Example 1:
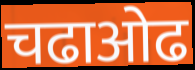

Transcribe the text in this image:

चढाओढ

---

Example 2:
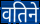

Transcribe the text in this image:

वतिने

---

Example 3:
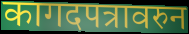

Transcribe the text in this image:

कागदपत्रावरुन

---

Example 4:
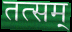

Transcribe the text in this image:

तत्सम्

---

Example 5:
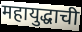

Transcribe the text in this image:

महायुद्धाची